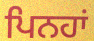
ਪਿਨਹਾਂ